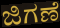
ಜಿಗಣೆ